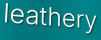
leathery